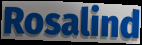
Rosalind